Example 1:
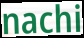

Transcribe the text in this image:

nachi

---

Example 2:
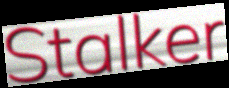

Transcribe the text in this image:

Stalker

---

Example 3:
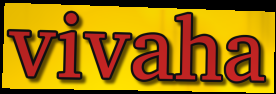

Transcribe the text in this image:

vivaha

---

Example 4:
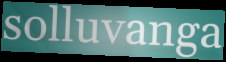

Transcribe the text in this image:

solluvanga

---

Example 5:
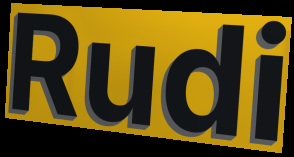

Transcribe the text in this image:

Rudi